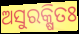
ଅସୁରକ୍ଷିତଃ